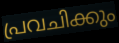
പ്രവചിക്കും